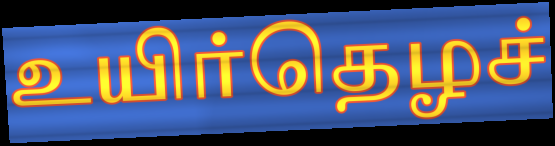
உயிர்தெழச்